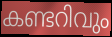
കണ്ടറിവും